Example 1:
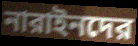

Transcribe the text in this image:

নারাইনদের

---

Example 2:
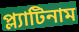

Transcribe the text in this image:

প্ল্যাটিনাম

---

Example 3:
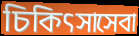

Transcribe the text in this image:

চিকিৎসাসেবা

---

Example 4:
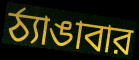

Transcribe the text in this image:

ঠ্যাঙাবার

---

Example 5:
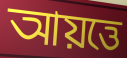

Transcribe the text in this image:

আয়ত্তে